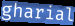
gharial